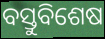
ବସ୍ତୁବିଶେଷ